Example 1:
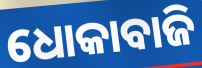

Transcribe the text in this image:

ଧୋକାବାଜି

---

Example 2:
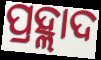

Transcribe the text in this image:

ପ୍ରହ୍ଲାଦ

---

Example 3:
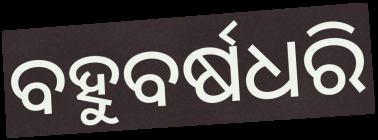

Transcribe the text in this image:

ବହୁବର୍ଷଧରି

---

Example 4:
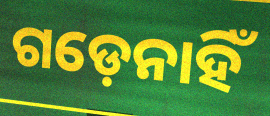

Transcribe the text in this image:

ଗଡ଼େନାହିଁ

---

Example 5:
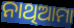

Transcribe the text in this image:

ନାଥିଆମା